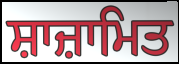
ਸ਼ਾਜ਼ਾਮਿਤ